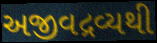
અજીવદ્રવ્યથી